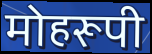
मोहरूपी